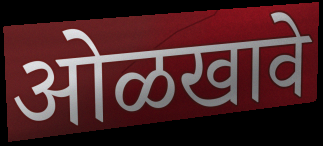
ओळखावे